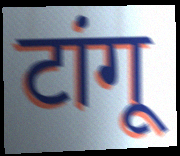
टांगू